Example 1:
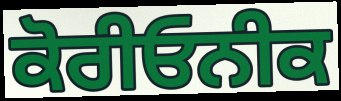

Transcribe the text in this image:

ਕੋਰੀਓਨੀਕ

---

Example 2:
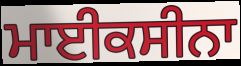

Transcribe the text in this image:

ਮਾਈਕਸੀਨਾ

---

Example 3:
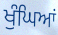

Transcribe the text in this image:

ਖੁੰਘਿਆਂ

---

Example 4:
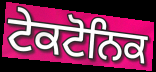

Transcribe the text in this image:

ਟੇਕਟੋਨਿਕ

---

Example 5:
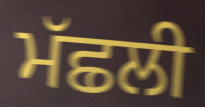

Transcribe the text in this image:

ਮੱਛਲੀ